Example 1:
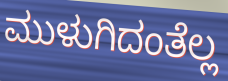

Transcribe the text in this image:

ಮುಳುಗಿದಂತೆಲ್ಲ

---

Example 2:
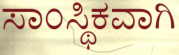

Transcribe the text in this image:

ಸಾಂಸ್ಥಿಕವಾಗಿ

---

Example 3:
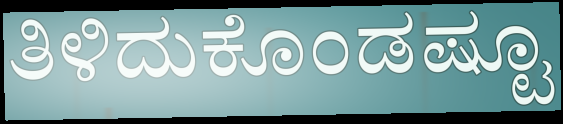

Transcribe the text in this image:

ತಿಳಿದುಕೊಂಡಷ್ಟೂ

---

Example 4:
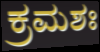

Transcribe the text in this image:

ಕ್ರಮಶಃ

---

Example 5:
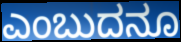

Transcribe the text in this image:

ಎಂಬುದನೂ